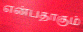
என்பதாகும்